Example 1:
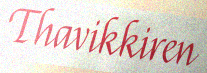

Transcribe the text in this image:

Thavikkiren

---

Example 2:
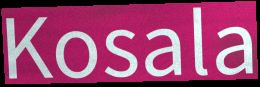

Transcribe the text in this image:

Kosala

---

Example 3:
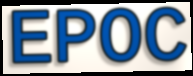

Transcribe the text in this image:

EPOC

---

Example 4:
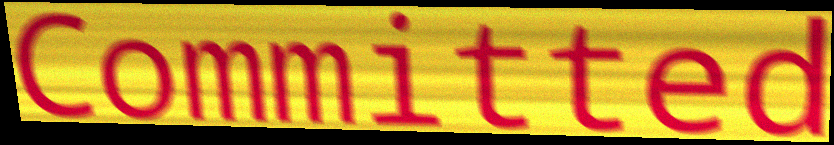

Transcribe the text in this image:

Committed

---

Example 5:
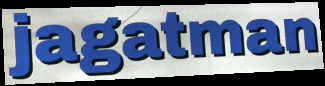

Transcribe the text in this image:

jagatman